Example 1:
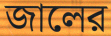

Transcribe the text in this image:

জালের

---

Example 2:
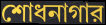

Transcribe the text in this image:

শোধনাগার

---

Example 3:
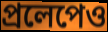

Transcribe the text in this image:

প্রলেপেও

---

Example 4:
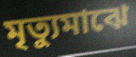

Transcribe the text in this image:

মৃত্যুমাঝে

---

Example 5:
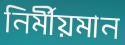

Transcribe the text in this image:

নির্মীয়মান